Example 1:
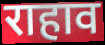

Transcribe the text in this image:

राहाव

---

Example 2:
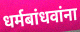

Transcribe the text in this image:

धर्मबांधवांना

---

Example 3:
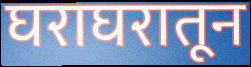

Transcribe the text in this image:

घराघरातून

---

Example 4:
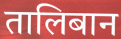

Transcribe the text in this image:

तालिबान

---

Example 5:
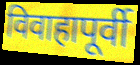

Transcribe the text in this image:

विवाहापूर्वी